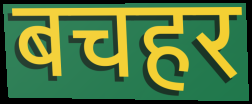
बचहर